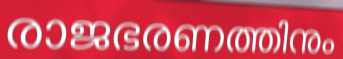
രാജഭരണത്തിനും